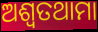
ଅଶ୍ୱତଥାମା